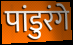
पांडुरंगे